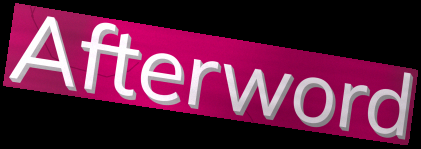
Afterword